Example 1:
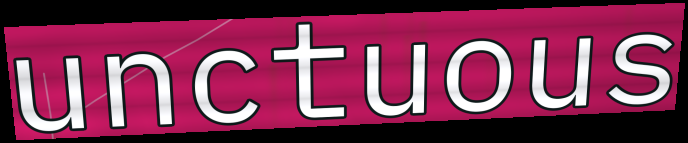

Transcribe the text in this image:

unctuous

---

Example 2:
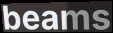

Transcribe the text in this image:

beams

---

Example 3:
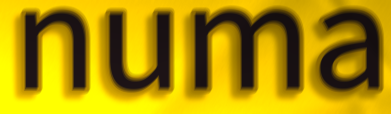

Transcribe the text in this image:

numa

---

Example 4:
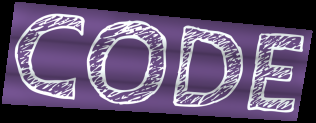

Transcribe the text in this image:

CODE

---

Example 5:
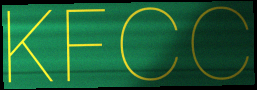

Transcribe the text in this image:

KFCC